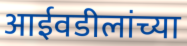
आईवडीलांच्या